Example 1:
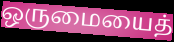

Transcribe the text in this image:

ஒருமையைத்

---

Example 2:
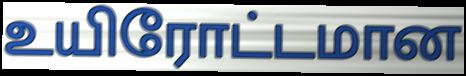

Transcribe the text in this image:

உயிரோட்டமான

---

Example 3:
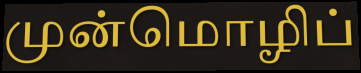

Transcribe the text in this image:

முன்மொழிப்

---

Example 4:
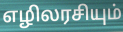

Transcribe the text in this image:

எழிலரசியும்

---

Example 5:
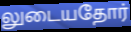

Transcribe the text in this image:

லுடையதோர்